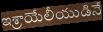
ఇశ్రాయేలీయుడినే